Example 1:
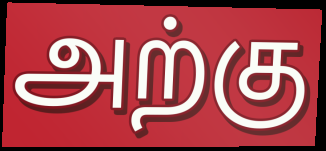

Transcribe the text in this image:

அற்கு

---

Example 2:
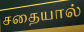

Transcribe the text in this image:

சதையால்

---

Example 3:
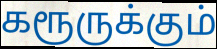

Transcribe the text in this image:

கரூருக்கும்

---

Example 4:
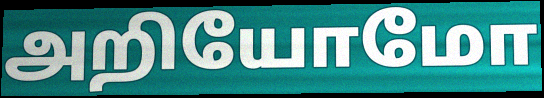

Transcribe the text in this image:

அறியோமோ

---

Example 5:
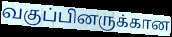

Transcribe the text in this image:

வகுப்பினருக்கான